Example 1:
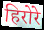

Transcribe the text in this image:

हिरोरे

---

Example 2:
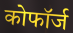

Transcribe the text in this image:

कोफॉर्ज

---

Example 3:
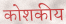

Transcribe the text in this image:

कोशकीय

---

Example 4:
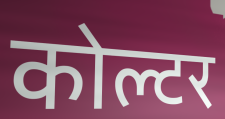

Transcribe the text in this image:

कोल्टर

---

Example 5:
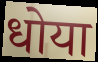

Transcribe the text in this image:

धोया